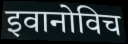
इवानोविच